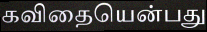
கவிதையென்பது